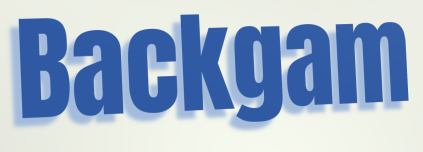
Backgam